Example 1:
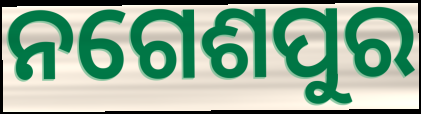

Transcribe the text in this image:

ନଗେଶପୁର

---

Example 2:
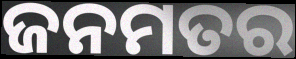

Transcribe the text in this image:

ଜନମତର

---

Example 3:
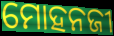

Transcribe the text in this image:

ମୋହନଜୀ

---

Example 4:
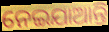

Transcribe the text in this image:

ନେଇଯାଆନ୍ତି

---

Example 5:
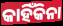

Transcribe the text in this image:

କାହିଁକିନା